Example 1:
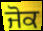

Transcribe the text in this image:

ਜੋਕ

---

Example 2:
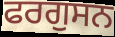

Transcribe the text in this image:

ਫਰਗੁਸਨ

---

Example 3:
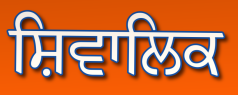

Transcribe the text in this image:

ਸ਼ਿਵਾਲਿਕ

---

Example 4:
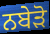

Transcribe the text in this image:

ਨਬੇੜੋ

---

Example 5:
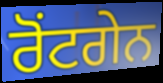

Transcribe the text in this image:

ਰੋਂਟਗੇਨ